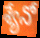
శ్యేనో